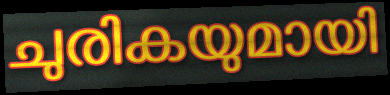
ചുരികയുമായി